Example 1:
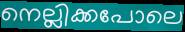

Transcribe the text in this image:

നെല്ലിക്കപോലെ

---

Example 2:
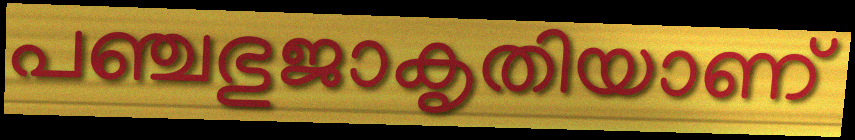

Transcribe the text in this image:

പഞ്ചഭുജാകൃതിയാണ്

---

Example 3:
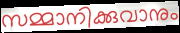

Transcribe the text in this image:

സമ്മാനിക്കുവാനും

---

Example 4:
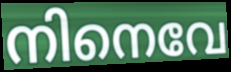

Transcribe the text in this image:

നിനെവേ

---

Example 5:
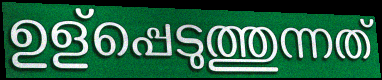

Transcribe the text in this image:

ഉള്പ്പെടുത്തുന്നത്